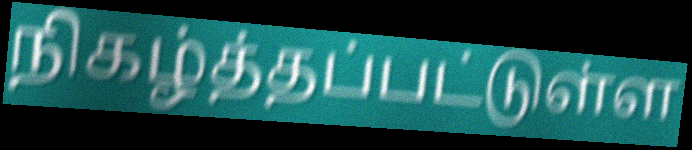
நிகழ்த்தப்பட்டுள்ள